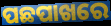
ପଛପାଖରେ